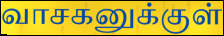
வாசகனுக்குள்